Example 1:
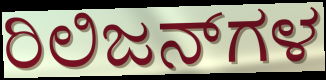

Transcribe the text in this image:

ರಿಲಿಜನ್‌ಗಳ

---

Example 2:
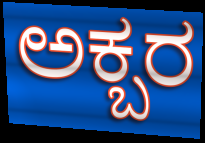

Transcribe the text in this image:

ಅಕ್ಬರ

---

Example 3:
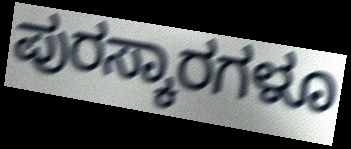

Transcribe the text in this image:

ಪುರಸ್ಕಾರಗಳೂ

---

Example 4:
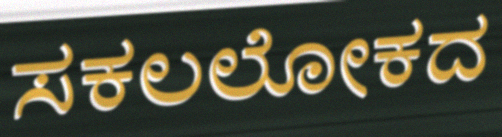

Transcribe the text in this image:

ಸಕಲಲೋಕದ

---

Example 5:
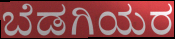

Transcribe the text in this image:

ಬೆಡಗಿಯರ